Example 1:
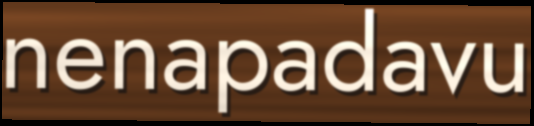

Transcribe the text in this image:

nenapadavu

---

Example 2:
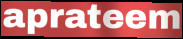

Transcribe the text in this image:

aprateem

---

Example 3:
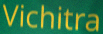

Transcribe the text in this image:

Vichitra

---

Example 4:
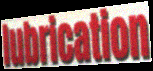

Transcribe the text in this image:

lubrication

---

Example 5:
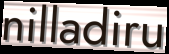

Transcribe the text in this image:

nilladiru